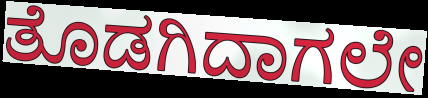
ತೊಡಗಿದಾಗಲೇ